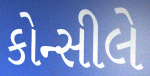
કોન્સીલે